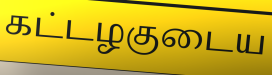
கட்டழகுடைய